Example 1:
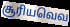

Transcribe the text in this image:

சூரியவெவ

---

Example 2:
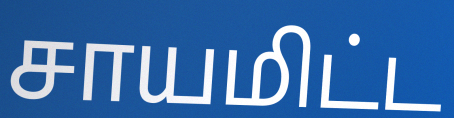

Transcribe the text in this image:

சாயமிட்ட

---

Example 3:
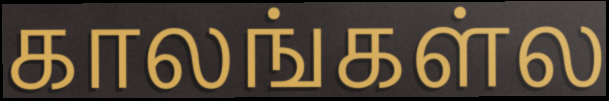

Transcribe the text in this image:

காலங்கள்ல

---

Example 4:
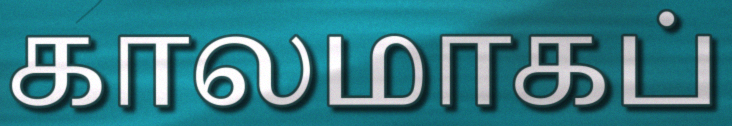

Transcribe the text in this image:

காலமாகப்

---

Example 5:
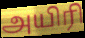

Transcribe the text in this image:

அயிரி